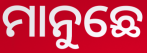
ମାନୁଛେ